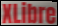
XLibre